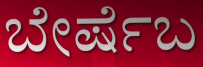
ಬೇರ್ಷೆಬ